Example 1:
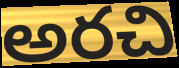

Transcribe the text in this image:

అరచి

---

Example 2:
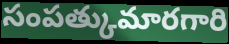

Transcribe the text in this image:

సంపత్కుమారగారి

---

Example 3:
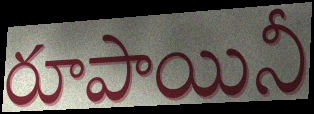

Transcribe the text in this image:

రూపాయినీ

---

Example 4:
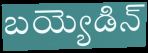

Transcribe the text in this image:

బయ్యెడిన్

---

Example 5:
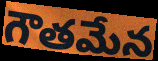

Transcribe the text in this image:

గౌతమేన